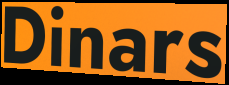
Dinars